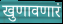
खुणावणारं